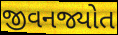
જીવનજ્યોત